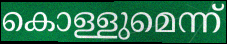
കൊള്ളുമെന്ന്